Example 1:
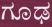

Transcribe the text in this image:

ಗೂಢ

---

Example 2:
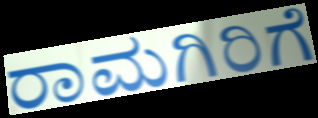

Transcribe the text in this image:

ರಾಮಗಿರಿಗೆ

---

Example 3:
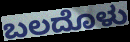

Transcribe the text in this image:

ಬಲದೊಳು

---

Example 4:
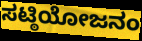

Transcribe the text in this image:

ಸಟ್ಠಿಯೋಜನಂ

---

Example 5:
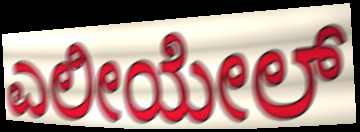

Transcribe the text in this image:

ಎಲೀಯೇಲ್